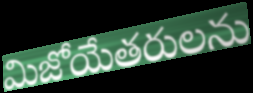
మిజోయేతరులను